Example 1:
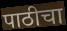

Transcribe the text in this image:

पाठीचा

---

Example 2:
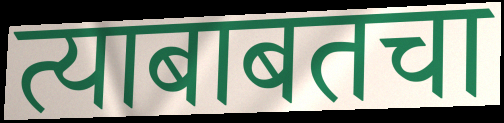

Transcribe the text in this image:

त्याबाबतचा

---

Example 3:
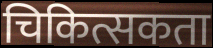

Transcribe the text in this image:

चिकित्सकता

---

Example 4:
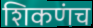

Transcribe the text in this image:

शिकणंच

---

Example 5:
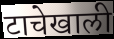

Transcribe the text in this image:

टाचेखाली